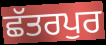
ਛੱਤਰਪੁਰ